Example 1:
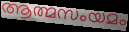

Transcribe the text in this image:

ആത്മസംയമം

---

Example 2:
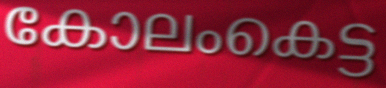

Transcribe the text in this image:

കോലംകെട്ട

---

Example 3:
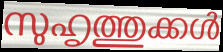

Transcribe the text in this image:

സുഹൃത്തുക്കൾ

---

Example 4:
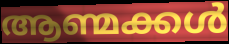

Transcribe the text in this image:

ആണ്മക്കൾ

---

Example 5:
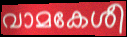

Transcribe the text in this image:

വാമകേശീ